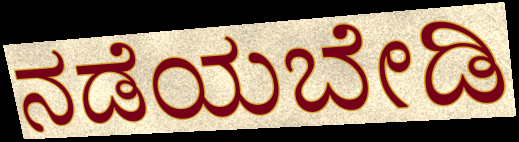
ನಡೆಯಬೇಡಿ